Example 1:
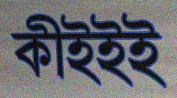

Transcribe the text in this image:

কীইইই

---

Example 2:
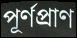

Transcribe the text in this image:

পূর্ণপ্রাণ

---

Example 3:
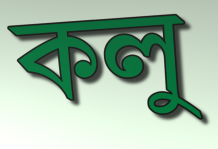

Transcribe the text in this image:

কলু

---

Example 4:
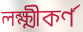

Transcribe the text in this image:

লক্ষ্মীকর্ণ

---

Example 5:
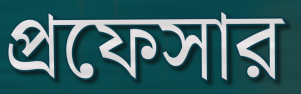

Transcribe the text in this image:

প্রফেসার